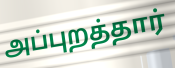
அப்புறத்தார்